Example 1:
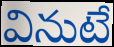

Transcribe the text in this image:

వినుటే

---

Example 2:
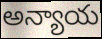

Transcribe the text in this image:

అన్యాయ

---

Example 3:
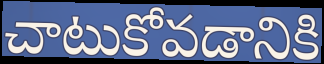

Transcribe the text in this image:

చాటుకోవడానికి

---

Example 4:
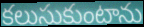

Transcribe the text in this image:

కలుసుకుంటాను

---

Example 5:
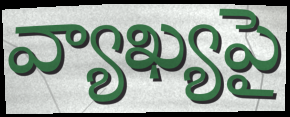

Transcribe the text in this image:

వ్యాఖ్యపై